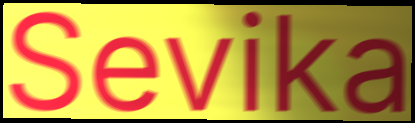
Sevika